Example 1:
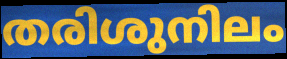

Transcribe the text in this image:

തരിശുനിലം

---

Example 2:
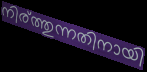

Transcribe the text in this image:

നിര്ത്തുന്നതിനായി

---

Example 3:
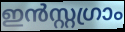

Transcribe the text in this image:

ഇൻസ്റ്റഗ്രാം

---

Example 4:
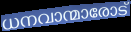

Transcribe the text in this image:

ധനവാന്മാരോട്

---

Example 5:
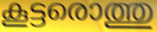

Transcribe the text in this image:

കൂട്ടരൊത്തു